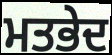
ਮਤਭੇਦ